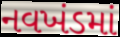
નવખંડમાં